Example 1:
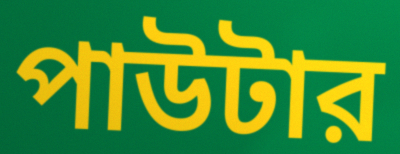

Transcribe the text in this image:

পাউটার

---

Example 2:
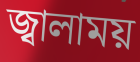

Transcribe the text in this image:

জ্বালাময়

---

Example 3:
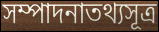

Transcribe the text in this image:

সম্পাদনাতথ্যসূত্র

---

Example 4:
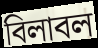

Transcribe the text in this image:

বিলাবল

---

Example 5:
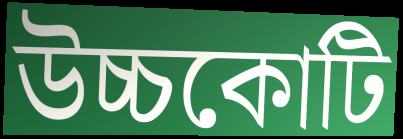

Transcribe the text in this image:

উচ্চকোটি